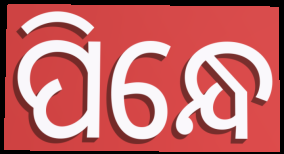
ପିନ୍ଧେ